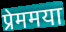
प्रेममया